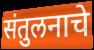
संतुलनाचे